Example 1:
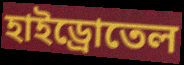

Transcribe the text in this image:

হাইড্রোতেল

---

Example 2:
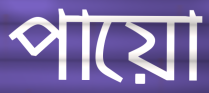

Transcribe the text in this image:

পায়ো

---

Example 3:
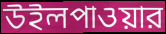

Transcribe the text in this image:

উইলপাওয়ার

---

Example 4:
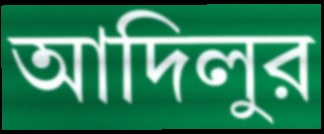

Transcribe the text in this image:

আদিলুর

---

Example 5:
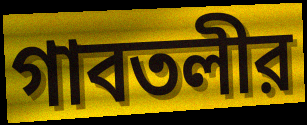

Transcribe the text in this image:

গাবতলীর